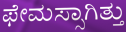
ಫೇಮಸ್ಸಾಗಿತ್ತು